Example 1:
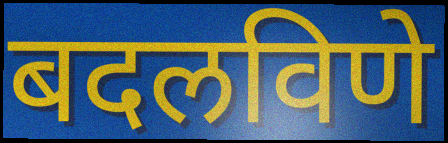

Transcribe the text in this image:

बदलविणे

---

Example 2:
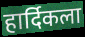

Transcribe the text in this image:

हार्दिकला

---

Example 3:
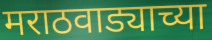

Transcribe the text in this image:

मराठवाड्याच्या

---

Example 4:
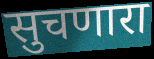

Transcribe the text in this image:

सुचणारा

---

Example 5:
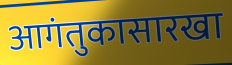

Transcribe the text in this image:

आगंतुकासारखा